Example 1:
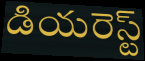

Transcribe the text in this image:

డియరెస్ట్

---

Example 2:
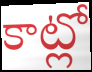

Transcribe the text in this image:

కాట్లో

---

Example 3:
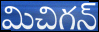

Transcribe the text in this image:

మిచిగన్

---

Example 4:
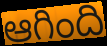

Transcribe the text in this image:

ఆగింది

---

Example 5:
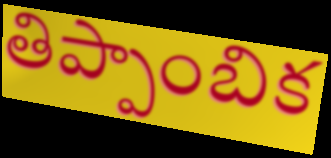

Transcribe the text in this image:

తిప్పాంబిక